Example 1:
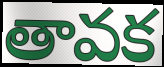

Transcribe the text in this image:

తావక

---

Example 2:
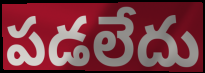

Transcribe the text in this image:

పడలేదు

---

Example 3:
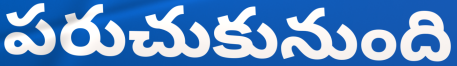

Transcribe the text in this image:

పరుచుకునుంది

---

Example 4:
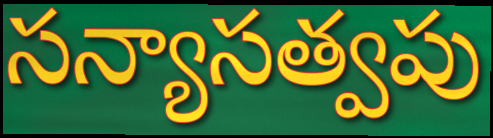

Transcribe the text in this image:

సన్యాసత్వపు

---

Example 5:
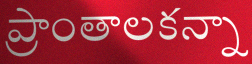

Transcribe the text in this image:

ప్రాంతాలకన్నా